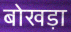
बोखड़ा